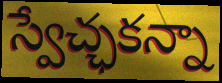
స్వేచ్ఛకన్నా